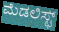
ಮೆಡಲಿಸ್ಟ್